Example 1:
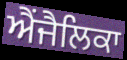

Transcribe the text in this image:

ਐਂਜੈਲਿਕਾ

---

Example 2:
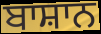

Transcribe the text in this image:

ਬਾਸ਼ਾਨ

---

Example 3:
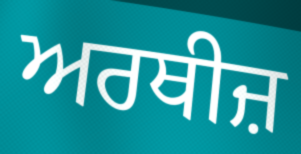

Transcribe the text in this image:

ਅਰਥੀਜ਼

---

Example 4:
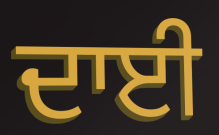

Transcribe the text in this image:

ਦਾਈ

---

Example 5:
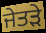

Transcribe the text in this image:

ਜੇਤੜੇ